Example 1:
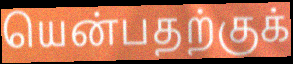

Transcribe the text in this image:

யென்பதற்குக்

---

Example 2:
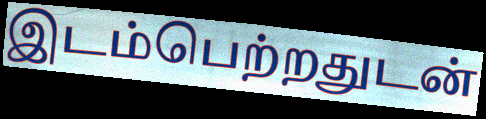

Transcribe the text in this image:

இடம்பெற்றதுடன்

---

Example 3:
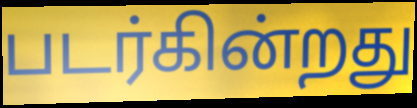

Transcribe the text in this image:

படர்கின்றது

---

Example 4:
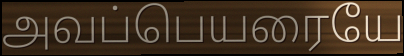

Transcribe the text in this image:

அவப்பெயரையே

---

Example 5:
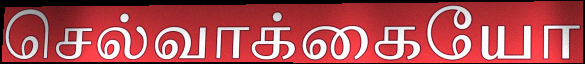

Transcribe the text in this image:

செல்வாக்கையோ